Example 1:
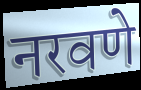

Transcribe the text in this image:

नरवणे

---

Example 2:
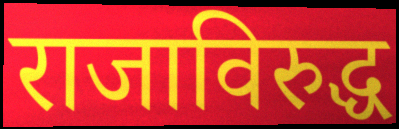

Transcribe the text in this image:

राजाविरुद्ध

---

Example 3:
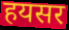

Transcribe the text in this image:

हयसर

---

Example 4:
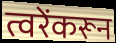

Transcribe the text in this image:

त्वरेंकरून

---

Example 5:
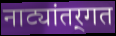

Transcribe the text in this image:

नाट्यांतर्गत